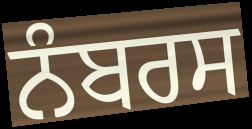
ਨੰਬਰਸ